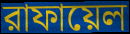
রাফায়েল